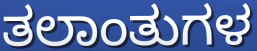
ತಲಾಂತುಗಳ